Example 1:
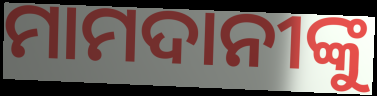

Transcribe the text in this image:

ମାମଦାନୀଙ୍କୁ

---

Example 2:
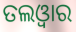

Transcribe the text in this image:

ତଲଓ୍ୱାର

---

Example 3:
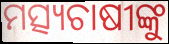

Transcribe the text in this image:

ମତ୍ସ୍ୟଚାଷୀଙ୍କୁ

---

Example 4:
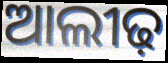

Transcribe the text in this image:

ଆଲୀଢ଼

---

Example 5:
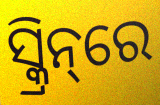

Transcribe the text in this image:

ସ୍କ୍ରିନ୍‌ରେ